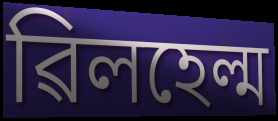
ৱিলহেল্ম